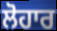
ਲੋਹਾਰ